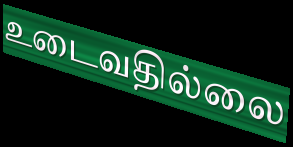
உடைவதில்லை